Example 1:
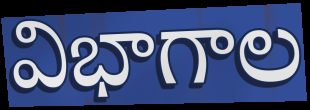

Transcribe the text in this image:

విభాగాల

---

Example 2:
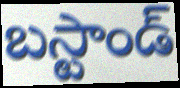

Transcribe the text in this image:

బస్టాండ్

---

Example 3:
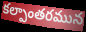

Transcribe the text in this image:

కల్పాంతరమున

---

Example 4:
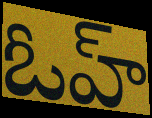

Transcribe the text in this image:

ఓహ్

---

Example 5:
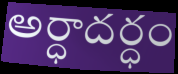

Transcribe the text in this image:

అర్ధాదర్ధం